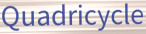
Quadricycle